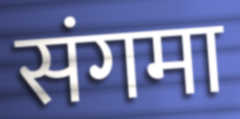
संगमा